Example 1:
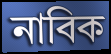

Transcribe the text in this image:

নাবিক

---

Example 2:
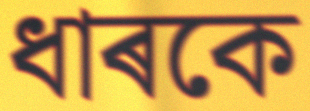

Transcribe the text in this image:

ধাৰকে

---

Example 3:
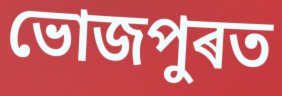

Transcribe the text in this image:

ভোজপুৰত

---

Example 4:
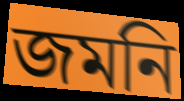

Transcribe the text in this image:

জমনি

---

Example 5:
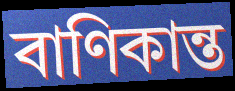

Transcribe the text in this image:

বাণিকান্ত